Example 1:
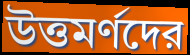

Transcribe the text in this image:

উত্তমর্ণদের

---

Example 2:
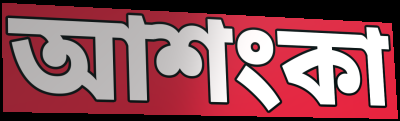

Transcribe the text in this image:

আশংকা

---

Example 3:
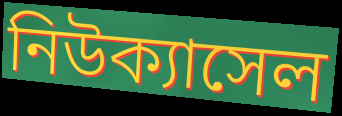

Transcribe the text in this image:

নিউক্যাসেল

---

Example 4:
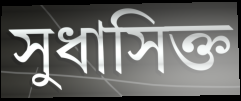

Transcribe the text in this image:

সুধাসিক্ত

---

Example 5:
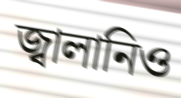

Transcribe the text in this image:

জ্বালানিও